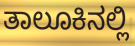
ತಾಲೂಕಿನಲ್ಲಿ